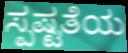
ಸ್ಪಷ್ಟತೆಯ